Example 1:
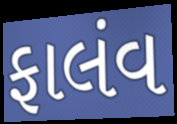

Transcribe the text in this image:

ફાલંવ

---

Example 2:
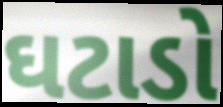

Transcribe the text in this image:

ઘટાડો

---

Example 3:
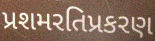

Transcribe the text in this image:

પ્રશમરતિપ્રકરણ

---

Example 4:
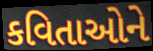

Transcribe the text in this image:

કવિતાઓને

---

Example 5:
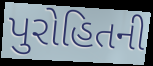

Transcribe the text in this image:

પુરોહિતની